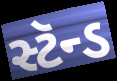
સ્ટૅન્ડ